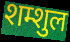
शम्शुल